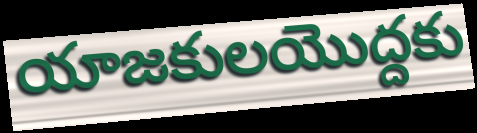
యాజకులయొద్దకు